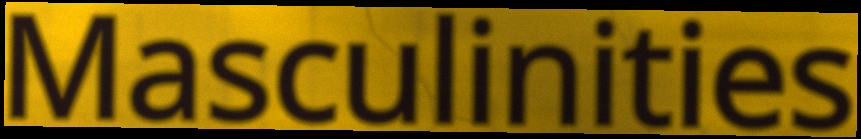
Masculinities